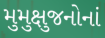
મુમુક્ષુજનોનાં